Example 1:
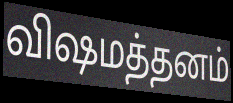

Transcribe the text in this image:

விஷமத்தனம்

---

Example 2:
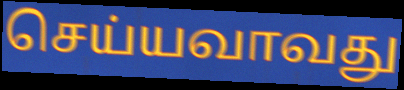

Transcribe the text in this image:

செய்யவாவது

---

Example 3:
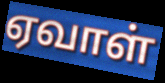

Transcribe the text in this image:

ஏவாள்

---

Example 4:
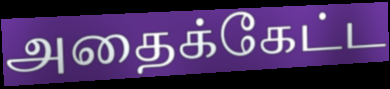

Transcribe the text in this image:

அதைக்கேட்ட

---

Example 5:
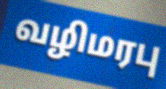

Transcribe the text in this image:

வழிமரபு